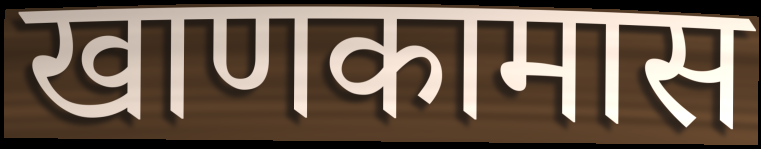
खाणकामास